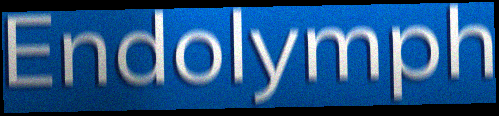
Endolymph